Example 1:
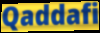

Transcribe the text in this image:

Qaddafi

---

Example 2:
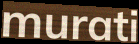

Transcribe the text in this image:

murati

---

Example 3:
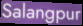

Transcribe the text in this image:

Salangpur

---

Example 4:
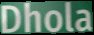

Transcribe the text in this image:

Dhola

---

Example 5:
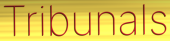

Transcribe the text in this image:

Tribunals